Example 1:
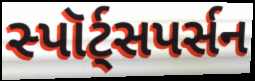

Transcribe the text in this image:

સ્પૉર્ટ્સપર્સન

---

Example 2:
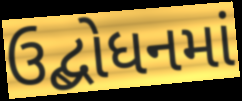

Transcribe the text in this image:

ઉદ્બોધનમાં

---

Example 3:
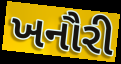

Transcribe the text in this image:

ખનૌરી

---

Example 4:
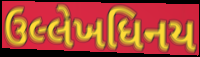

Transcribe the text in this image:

ઉલ્લેખધિનય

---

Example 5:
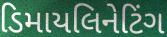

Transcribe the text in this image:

ડિમાયલિનેટિંગ